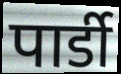
पार्डी